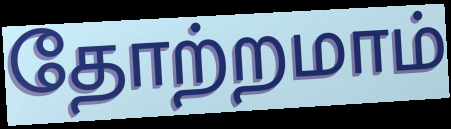
தோற்றமாம்